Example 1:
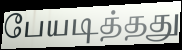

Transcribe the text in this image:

பேயடித்தது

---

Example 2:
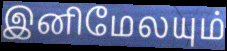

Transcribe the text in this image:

இனிமேலயும்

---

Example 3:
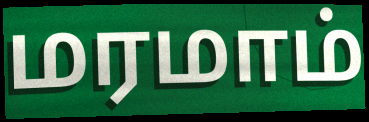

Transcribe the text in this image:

மரமாம்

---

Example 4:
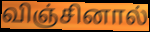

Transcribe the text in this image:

விஞ்சினால்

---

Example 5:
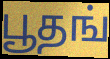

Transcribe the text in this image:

பூதங்